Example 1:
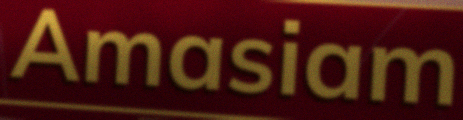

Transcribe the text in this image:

Amasiam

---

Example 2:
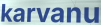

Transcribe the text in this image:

karvanu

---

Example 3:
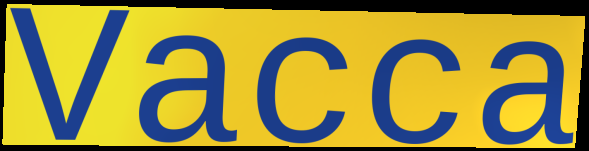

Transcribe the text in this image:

Vacca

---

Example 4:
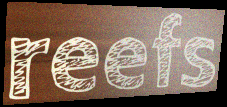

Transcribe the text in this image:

reefs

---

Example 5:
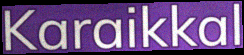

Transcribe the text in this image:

Karaikkal